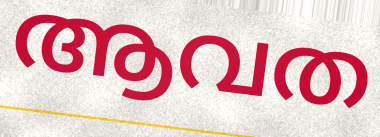
ആവത